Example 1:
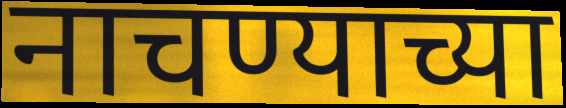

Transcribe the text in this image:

नाचण्याच्या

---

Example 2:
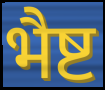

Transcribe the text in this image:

भैष्ट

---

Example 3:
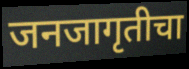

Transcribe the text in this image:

जनजागृतीचा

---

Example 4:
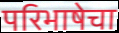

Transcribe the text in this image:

परिभाषेचा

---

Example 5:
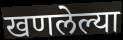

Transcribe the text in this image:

खणलेल्या